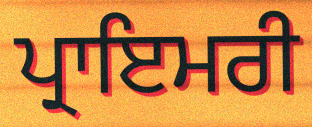
ਪ੍ਰਾਇਮਰੀ